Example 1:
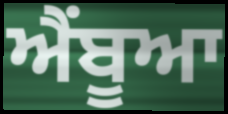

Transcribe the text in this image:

ਐਂਬੂਆ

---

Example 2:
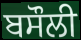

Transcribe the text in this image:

ਬਸੌਲੀ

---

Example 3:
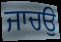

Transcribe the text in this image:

ਜਾਚਉ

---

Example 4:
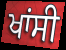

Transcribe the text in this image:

ਖਾਂਸੀ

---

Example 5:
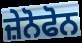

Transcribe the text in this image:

ਜ਼ੇਨੋਫੋਨ